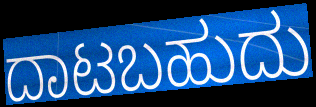
ದಾಟಬಹುದು